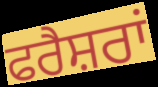
ਫਰੈਸ਼ਰਾਂ